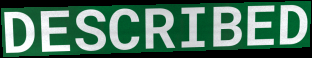
DESCRIBED